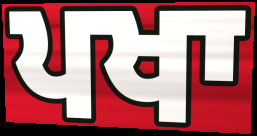
ਪਖਾ